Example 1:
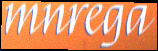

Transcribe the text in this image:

mnrega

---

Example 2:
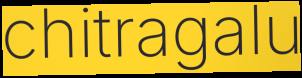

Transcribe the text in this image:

chitragalu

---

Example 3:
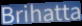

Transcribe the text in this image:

Brihatta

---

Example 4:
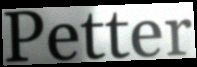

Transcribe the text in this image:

Petter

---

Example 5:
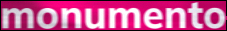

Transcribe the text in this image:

monumento